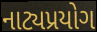
નાટ્યપ્રયોગ